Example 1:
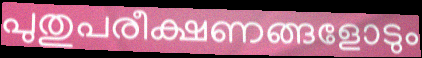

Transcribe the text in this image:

പുതുപരീക്ഷണങ്ങളോടും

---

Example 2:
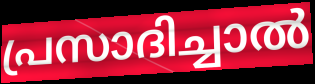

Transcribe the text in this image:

പ്രസാദിച്ചാൽ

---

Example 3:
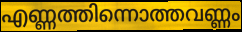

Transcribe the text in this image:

എണ്ണത്തിന്നൊത്തവണ്ണം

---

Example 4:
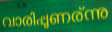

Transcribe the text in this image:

വാരിപ്പുണര്ന്നു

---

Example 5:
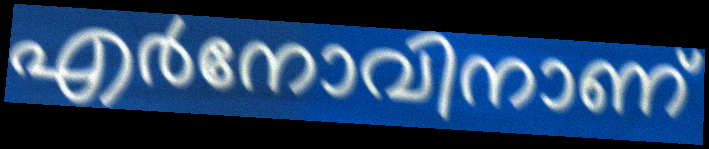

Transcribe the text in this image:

എർനോവിനാണ്